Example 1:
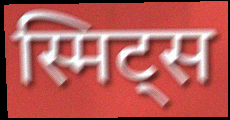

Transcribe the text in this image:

स्मिट्स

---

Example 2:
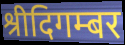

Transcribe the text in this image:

श्रीदिगम्बर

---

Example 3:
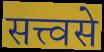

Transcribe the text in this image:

सत्त्वसे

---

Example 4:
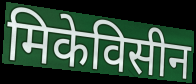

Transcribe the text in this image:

मिकेविसीन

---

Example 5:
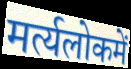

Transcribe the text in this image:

मर्त्यलोकमें